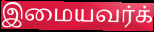
இமையவர்க்